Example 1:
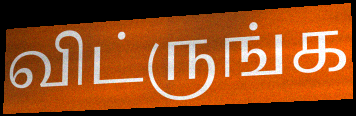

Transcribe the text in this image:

விட்ருங்க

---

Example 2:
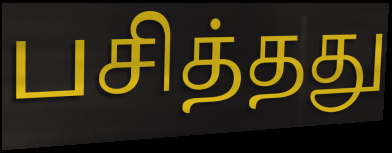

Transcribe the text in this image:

பசித்தது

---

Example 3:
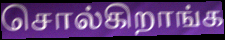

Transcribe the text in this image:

சொல்கிறாங்க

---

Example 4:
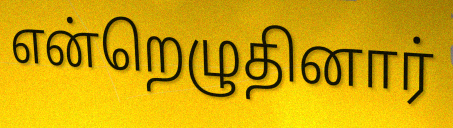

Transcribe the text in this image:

என்றெழுதினார்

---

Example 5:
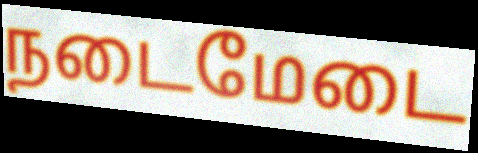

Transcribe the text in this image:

நடைமேடை